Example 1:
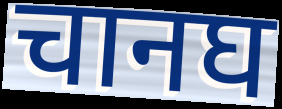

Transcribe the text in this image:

चानघ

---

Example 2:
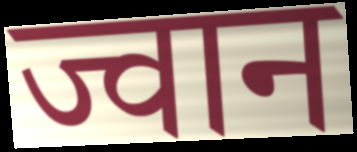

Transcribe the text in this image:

ज्वान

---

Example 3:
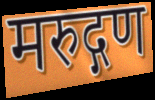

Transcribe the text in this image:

मरुद्गण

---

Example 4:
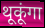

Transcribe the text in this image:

थूकूंगा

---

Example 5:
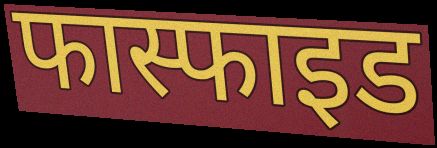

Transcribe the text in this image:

फास्फाइड